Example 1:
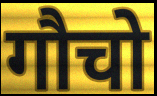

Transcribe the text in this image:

गौचो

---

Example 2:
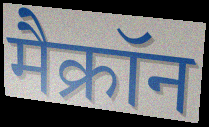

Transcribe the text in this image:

मैक्रॉन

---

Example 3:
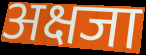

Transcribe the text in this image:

अक्षजा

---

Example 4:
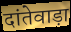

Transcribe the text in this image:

दांतेवाड़ा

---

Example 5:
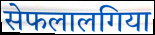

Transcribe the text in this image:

सेफलालगिया